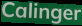
Calinger